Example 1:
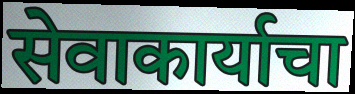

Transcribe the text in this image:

सेवाकार्याचा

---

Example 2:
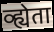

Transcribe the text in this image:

व्ह्येता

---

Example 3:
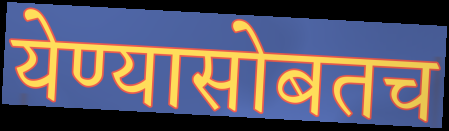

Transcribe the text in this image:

येण्यासोबतच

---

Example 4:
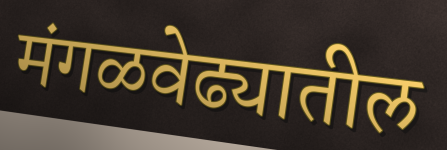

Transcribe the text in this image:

मंगळवेढ्यातील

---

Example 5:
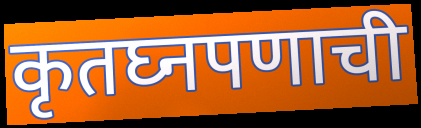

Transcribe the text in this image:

कृतघ्नपणाची